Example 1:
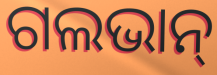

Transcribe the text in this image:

ଗଲଭାନ୍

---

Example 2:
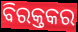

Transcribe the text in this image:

ବିରକ୍ତକର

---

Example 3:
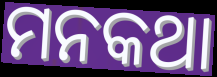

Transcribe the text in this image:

ମନକଥା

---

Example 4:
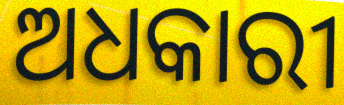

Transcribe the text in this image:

ଅଧକାରୀ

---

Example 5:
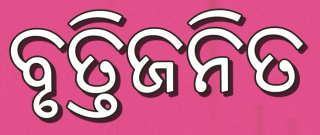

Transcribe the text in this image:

ବୃତ୍ତିଜନିତ